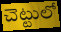
చెట్టులో